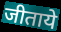
जीताये